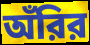
অঁরির